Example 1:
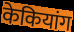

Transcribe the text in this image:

केकियांग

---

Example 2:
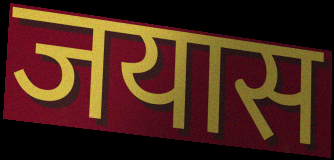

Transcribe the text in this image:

जयास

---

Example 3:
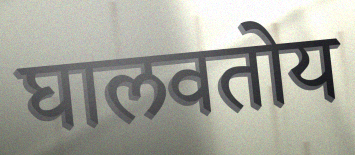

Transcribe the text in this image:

घालवतोय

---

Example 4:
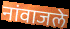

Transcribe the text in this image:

नांवाजले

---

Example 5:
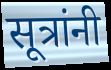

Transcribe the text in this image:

सूत्रांनी